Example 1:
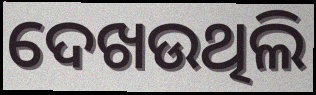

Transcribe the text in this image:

ଦେଖଉଥିଲି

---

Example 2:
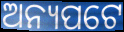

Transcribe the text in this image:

ଅନ୍ୟପଟେ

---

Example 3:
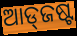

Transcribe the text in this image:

ଆଡ୍‌ଜଷ୍ଟ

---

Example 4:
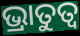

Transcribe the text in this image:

ଭ୍ରାତୁତ୍ଵ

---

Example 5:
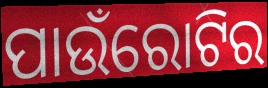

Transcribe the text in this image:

ପାଉଁରୋଟିର